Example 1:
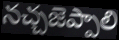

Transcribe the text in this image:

నచ్చజెప్పాలి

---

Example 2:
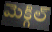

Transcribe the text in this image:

మెక్గిల్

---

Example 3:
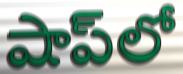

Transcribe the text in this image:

షాప్‌లో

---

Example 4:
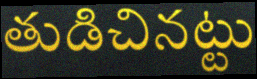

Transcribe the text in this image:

తుడిచినట్టు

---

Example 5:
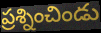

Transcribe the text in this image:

ప్రశ్నించిండు